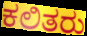
ಕಲಿತರು